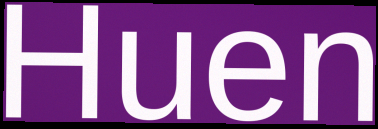
Huen